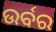
ଉର୍ବର